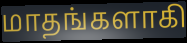
மாதங்களாகி